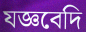
যজ্ঞবেদি